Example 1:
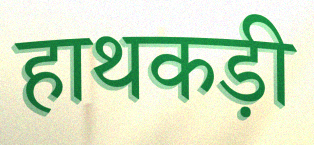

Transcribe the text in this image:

हाथकड़ी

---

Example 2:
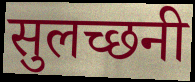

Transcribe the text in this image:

सुलच्छनी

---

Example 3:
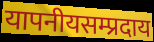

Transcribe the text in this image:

यापनीयसम्प्रदाय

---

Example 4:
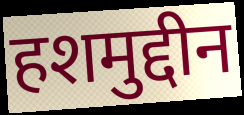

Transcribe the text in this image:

हशमुद्दीन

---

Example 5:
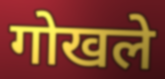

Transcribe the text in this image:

गोखले